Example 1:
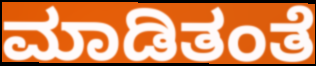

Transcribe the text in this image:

ಮಾಡಿತಂತೆ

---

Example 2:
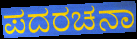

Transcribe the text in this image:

ಪದರಚನಾ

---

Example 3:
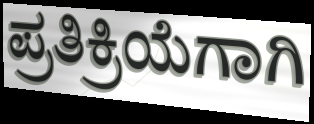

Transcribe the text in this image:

ಪ್ರತಿಕ್ರಿಯೆಗಾಗಿ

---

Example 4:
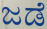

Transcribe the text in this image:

ಜಡೆ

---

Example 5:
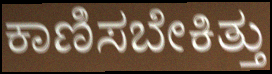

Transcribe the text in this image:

ಕಾಣಿಸಬೇಕಿತ್ತು